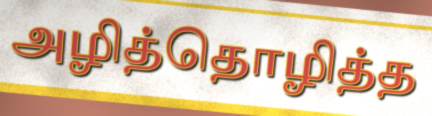
அழித்தொழித்த